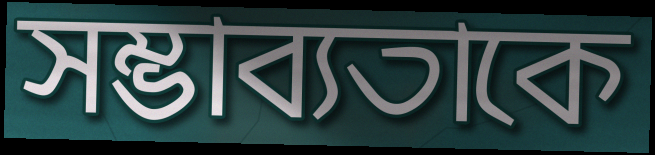
সম্ভাব্যতাকে